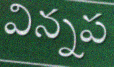
విన్నప